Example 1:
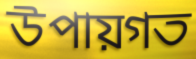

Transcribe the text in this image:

উপায়গত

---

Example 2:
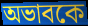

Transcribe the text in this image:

অভাবকে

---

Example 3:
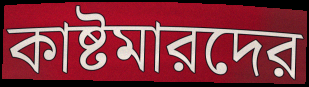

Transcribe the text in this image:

কাষ্টমারদের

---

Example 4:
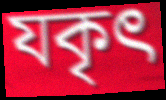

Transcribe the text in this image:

যকৃৎ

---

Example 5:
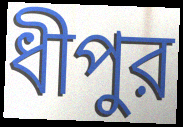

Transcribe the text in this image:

ধীপুর